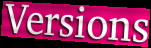
Versions